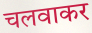
चलवाकर